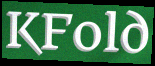
KFold